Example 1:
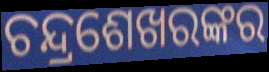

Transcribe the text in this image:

ଚନ୍ଦ୍ରଶେଖରଙ୍କର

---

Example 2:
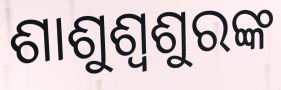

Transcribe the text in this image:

ଶାଶୁଶ୍ୱଶୁରଙ୍କ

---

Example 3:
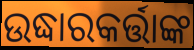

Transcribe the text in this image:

ଉଦ୍ଧାରକର୍ତ୍ତାଙ୍କ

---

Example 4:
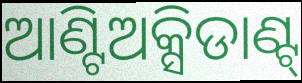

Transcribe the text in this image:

ଆଣ୍ଟିଅକ୍ସିଡାଣ୍ଟ୍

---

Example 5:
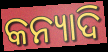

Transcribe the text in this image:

କନ୍ୟାଦି